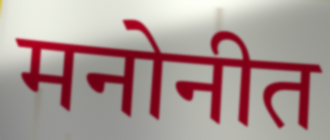
मनोनीत